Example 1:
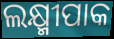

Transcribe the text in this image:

ଲକ୍ଷ୍ମୀପାକ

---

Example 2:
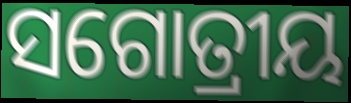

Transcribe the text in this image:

ସଗୋତ୍ରୀୟ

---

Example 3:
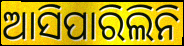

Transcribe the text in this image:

ଆସିପାରିଲିନି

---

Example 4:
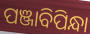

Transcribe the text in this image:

ପଞ୍ଜାବିପିନ୍ଧା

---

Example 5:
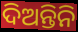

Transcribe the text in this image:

ଦିଅନ୍ତିନି